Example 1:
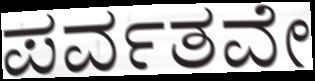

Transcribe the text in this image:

ಪರ್ವತವೇ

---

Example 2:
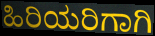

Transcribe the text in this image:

ಹಿರಿಯರಿಗಾಗಿ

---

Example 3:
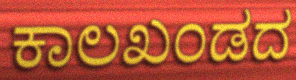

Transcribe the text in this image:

ಕಾಲಖಂಡದ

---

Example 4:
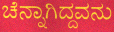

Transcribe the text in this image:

ಚೆನ್ನಾಗಿದ್ದವನು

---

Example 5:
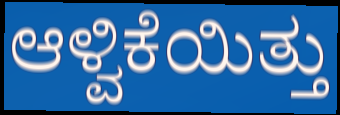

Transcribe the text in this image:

ಆಳ್ವಿಕೆಯಿತ್ತು